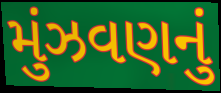
મુંઝવણનું